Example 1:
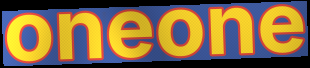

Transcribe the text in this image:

oneone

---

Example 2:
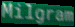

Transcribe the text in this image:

Milgram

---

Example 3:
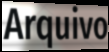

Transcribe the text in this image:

Arquivo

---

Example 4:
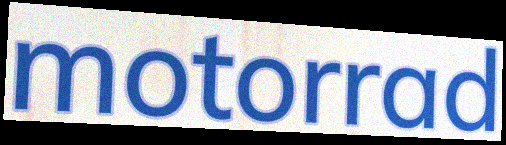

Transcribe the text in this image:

motorrad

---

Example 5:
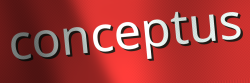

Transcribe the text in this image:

conceptus